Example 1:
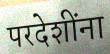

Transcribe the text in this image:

परदेशींना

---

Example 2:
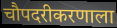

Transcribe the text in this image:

चौपदरीकरणाला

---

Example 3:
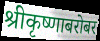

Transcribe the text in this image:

श्रीकृष्णाबरोबर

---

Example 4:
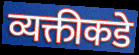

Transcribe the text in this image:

व्यक्तीकडे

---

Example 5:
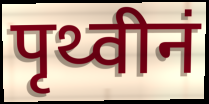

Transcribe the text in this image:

पृथ्वीनं